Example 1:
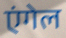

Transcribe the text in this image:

एंगेल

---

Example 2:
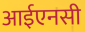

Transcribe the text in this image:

आईएनसी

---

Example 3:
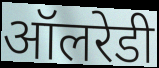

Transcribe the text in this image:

ऑलरेडी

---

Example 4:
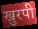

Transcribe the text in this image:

खुरपी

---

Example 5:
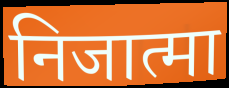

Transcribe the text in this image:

निजात्मा